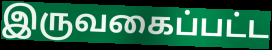
இருவகைப்பட்ட